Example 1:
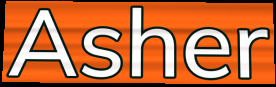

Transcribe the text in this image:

Asher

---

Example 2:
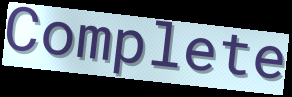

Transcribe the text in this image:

Complete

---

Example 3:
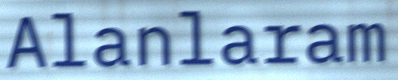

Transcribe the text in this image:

Alanlaram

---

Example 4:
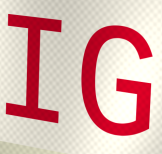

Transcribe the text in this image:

IG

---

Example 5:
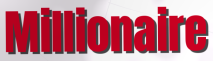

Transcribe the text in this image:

Millionaire